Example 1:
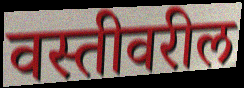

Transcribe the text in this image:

वस्तीवरील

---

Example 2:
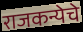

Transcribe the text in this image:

राजकन्येचे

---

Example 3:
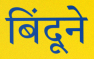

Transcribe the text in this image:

बिंदूने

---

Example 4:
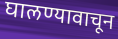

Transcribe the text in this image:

घालण्यावाचून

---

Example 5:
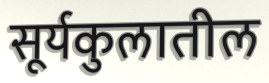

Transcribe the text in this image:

सूर्यकुलातील